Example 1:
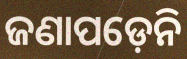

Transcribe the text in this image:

ଜଣାପଡ଼େନି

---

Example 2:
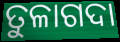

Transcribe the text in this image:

ତୁଳାଗଦା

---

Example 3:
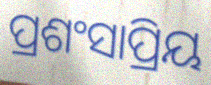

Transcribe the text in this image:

ପ୍ରଶଂସାପ୍ରିୟ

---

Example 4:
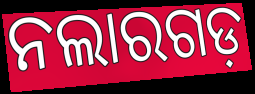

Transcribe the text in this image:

ନଲାରଗଡ଼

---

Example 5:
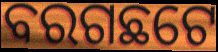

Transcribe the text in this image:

ବରଗଛଟେ